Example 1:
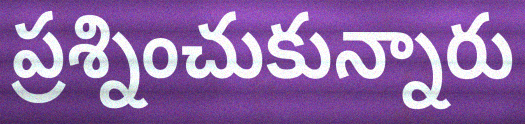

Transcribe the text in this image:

ప్రశ్నించుకున్నారు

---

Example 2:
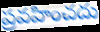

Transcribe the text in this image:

ప్రవహించదు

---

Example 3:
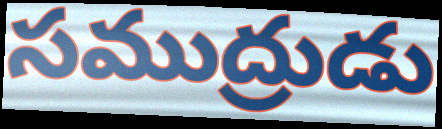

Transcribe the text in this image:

సముద్రుడు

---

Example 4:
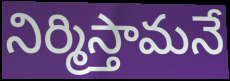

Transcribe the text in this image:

నిర్మిస్తామనే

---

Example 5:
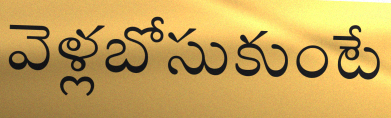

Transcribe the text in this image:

వెళ్లబోసుకుంటే